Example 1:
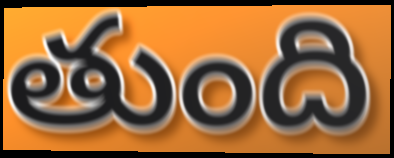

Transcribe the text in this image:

తుంది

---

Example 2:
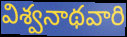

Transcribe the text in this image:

విశ్వనాథవారి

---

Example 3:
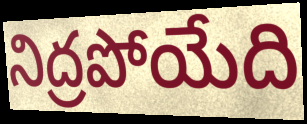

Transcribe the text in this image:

నిద్రపోయేది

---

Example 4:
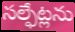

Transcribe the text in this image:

సల్ఫేట్లను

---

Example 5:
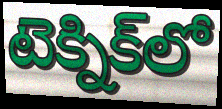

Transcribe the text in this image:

టెక్నిక్‌లో